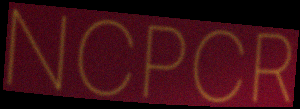
NCPCR